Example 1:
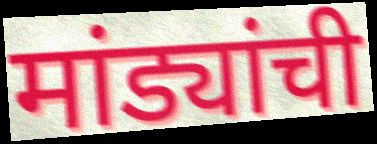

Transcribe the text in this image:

मांड्यांची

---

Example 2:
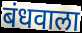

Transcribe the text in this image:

बंधवाला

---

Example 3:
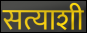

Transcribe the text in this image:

सत्याशी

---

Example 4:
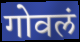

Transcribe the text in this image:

गोवलं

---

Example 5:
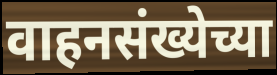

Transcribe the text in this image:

वाहनसंख्येच्या